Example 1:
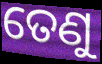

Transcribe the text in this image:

ତେଣୁ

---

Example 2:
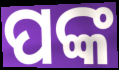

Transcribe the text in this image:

ପଙ୍କ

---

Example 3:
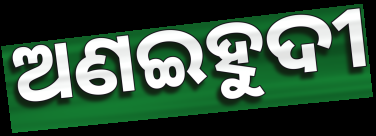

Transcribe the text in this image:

ଅଣଇହୁଦୀ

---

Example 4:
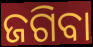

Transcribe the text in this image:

ଜଗିବା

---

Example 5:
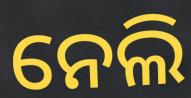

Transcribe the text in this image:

ନେଲି